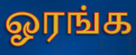
ஓரங்க